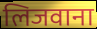
लिजवाना